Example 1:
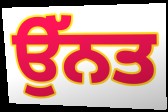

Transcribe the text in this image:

ਉੱਨਤ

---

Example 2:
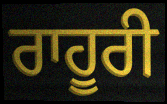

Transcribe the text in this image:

ਰਾਹੂਰੀ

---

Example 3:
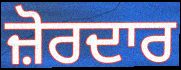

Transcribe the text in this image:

ਜ਼ੋਰਦਾਰ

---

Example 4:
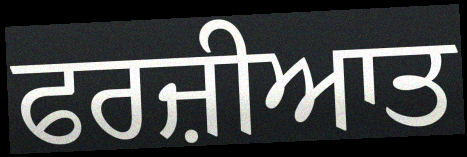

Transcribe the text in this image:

ਫਰਜ਼ੀਆਤ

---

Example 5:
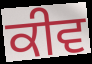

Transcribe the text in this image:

ਕੀਵ